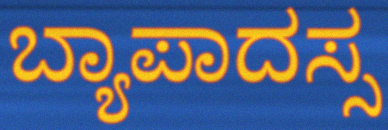
ಬ್ಯಾಪಾದಸ್ಸ